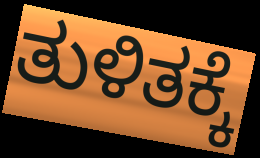
ತುಳಿತಕ್ಕೆ